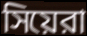
সিয়েরা